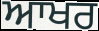
ਆਖਰ